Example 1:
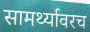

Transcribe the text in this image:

सामर्थ्यावरच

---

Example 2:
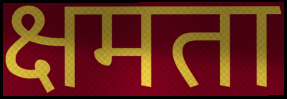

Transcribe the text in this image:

क्षमता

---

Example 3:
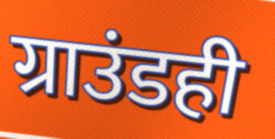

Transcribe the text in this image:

ग्राउंडही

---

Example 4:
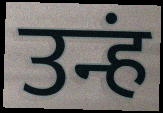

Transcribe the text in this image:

उन्हं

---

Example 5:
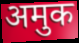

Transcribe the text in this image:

अमुक